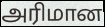
அரிமான